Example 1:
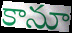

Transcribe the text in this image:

కానూ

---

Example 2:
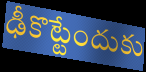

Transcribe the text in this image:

ఢీకొట్టేందుకు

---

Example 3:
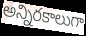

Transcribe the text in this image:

అన్నిరకాలుగా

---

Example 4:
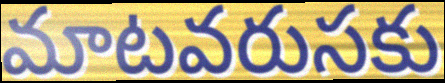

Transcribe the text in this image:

మాటవరుసకు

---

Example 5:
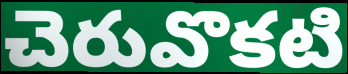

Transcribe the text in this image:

చెరువొకటి